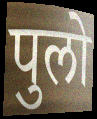
पुलो